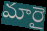
మారై